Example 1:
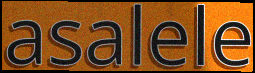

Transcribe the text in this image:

asalele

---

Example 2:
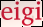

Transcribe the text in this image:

eigi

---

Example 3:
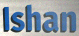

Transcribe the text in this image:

Ishan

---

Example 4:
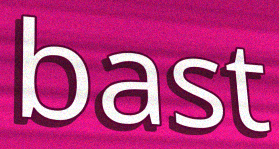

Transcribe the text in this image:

bast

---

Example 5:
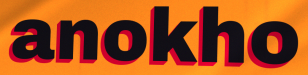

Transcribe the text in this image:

anokho